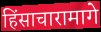
हिंसाचारामागे